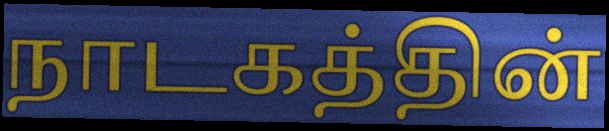
நாடகத்தின்